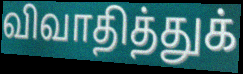
விவாதித்துக்